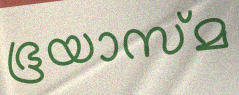
ഭൂയാസ്മ